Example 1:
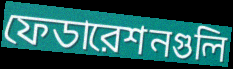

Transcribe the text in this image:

ফেডারেশনগুলি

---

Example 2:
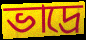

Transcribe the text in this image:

ভাদ্রে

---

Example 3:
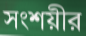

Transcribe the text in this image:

সংশয়ীর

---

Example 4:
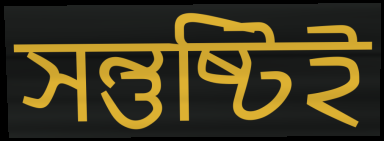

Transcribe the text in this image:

সন্তুষ্টিই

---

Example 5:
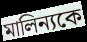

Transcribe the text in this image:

মালিন্যকে